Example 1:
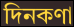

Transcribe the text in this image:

দিনকণা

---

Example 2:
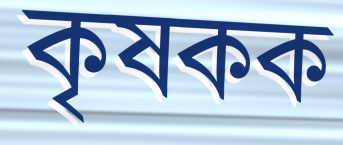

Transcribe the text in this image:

কৃষকক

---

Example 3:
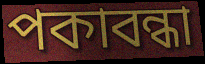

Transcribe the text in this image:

পকাবন্ধা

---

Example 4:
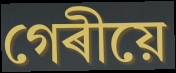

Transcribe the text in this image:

গেৰীয়ে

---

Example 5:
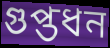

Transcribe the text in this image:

গুপ্তধন